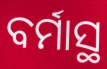
ବର୍ମାସ୍ଥ